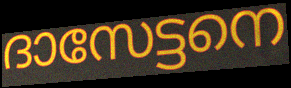
ദാസേട്ടനെ